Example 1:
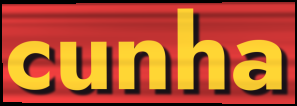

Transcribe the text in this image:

cunha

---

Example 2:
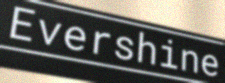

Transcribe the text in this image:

Evershine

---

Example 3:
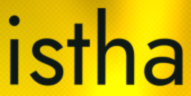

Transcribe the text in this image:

istha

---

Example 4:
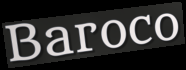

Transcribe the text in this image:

Baroco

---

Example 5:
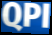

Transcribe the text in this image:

QPI